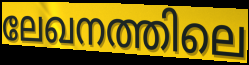
ലേഖനത്തിലെ